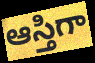
ఆస్తిగా